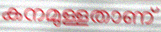
കനമുള്ളതാണ്